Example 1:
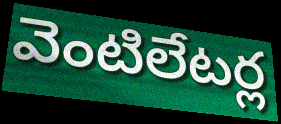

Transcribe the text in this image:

వెంటిలేటర్ల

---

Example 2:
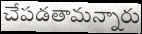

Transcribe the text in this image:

చేపడతామన్నారు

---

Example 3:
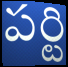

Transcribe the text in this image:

పర్టి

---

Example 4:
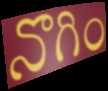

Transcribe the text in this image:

నొగిం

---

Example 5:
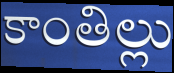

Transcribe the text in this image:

కాంతిల్లు